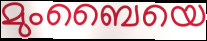
മുംബൈയെ